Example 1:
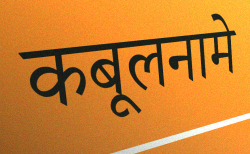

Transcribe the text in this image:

कबूलनामे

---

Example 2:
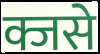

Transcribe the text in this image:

क्जसे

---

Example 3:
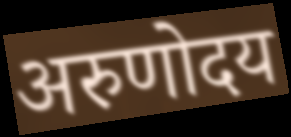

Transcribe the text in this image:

अरुणोदय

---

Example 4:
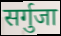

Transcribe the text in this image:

सर्गुजा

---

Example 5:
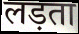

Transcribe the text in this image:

लड़ता